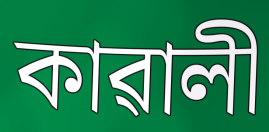
কাৱালী